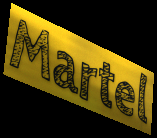
Martel